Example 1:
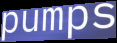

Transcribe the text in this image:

pumps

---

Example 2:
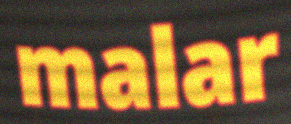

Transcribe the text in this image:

malar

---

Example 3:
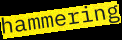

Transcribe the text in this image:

hammering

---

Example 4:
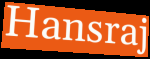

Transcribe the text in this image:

Hansraj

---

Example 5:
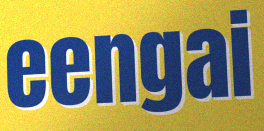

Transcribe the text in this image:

eengai